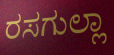
ರಸಗುಲ್ಲಾ